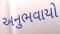
અનુભવાયો